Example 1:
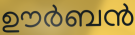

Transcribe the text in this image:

ഊർബൻ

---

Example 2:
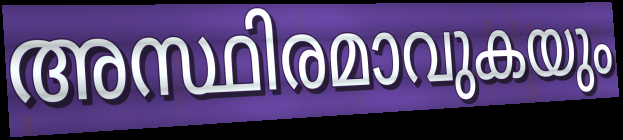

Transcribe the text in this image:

അസ്ഥിരമാവുകയും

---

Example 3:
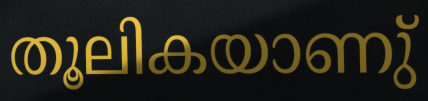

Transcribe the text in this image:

തൂലികയാണു്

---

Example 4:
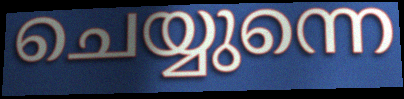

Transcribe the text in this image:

ചെയ്യുന്നെ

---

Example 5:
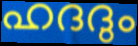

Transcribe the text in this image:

ഹദദും